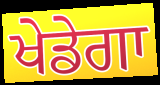
ਖੇਡੇਗਾ